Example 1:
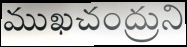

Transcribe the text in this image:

ముఖచంద్రుని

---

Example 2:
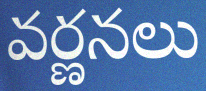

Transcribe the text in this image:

వర్ణనలు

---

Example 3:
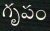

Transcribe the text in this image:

గృపం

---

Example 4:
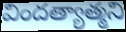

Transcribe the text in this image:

విందత్యాత్మని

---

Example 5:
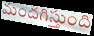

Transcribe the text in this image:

మందగిస్తుంది